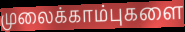
முலைக்காம்புகளை